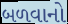
બળવાનો